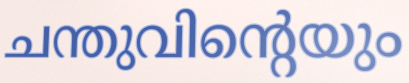
ചന്തുവിന്റെയും